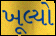
ખૂલ્યો